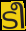
ടീ